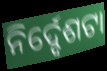
ନିର୍ଦ୍ଦେଶଟା